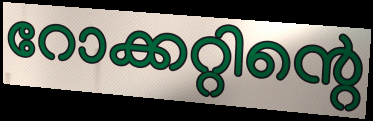
റോക്കറ്റിന്റെ